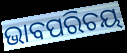
ଭାବପରିଚୟ